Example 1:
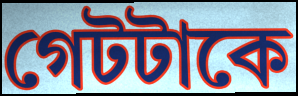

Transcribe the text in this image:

গেটটাকে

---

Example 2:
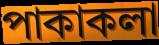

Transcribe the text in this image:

পাকাকলা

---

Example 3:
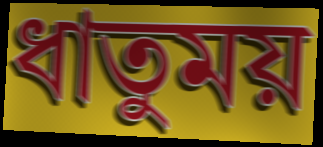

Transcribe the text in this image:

ধাতুময়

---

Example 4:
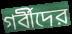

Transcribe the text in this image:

গর্বীদের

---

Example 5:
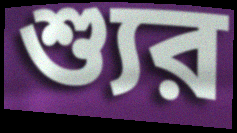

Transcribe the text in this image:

শ্যুর